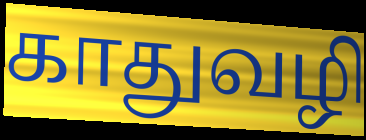
காதுவழி